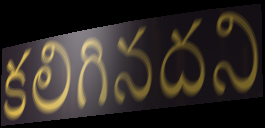
కలిగినదని